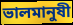
ভালমানুষী